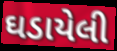
ઘડાયેલી